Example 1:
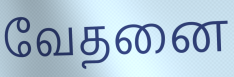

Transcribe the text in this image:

வேதனை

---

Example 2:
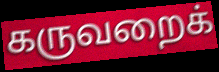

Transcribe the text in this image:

கருவறைக்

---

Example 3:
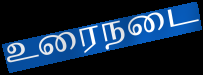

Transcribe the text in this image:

உரைநடை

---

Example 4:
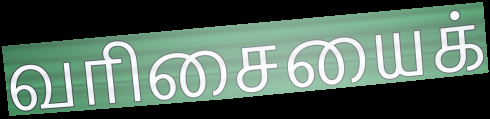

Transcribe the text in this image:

வரிசையைக்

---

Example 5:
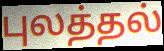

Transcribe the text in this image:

புலத்தல்